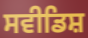
ਸਵੀਡਿਸ਼